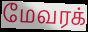
மேவரக்